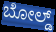
ಬೋಲ್ಡ್